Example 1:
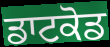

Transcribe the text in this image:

ਡਾਟਕੋਡ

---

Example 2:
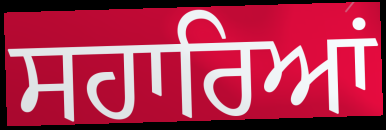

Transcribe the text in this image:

ਸਹਾਰਿਆਂ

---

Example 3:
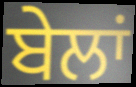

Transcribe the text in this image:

ਬੇਲਾਂ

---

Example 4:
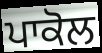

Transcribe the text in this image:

ਪਾਕੋਲ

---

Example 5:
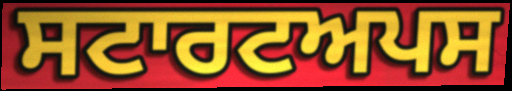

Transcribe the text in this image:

ਸਟਾਰਟਅਪਸ